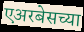
एअरबेसच्या